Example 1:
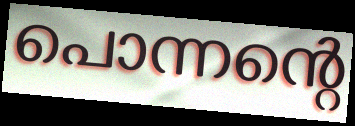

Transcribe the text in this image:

പൊന്നന്റെ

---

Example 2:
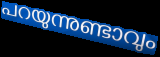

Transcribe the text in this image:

പറയുന്നുണ്ടാവും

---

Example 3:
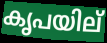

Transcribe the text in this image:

കൃപയില്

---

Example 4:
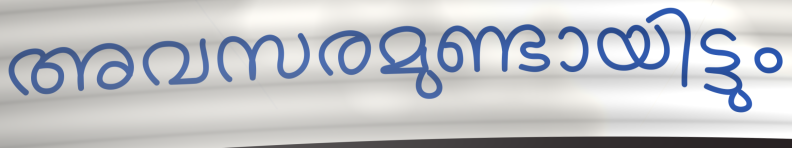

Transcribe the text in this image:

അവസരമുണ്ടായിട്ടും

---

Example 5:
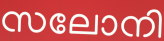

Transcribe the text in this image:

സലോനി